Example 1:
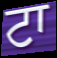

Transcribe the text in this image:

ਟਾ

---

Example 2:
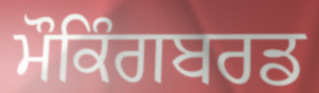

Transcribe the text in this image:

ਮੌਕਿੰਗਬਰਡ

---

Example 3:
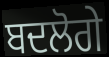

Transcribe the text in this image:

ਬਦਲੋਗੇ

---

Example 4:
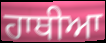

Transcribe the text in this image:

ਹਾਥੀਆ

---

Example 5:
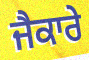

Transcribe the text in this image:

ਜੈਕਾਰੇ